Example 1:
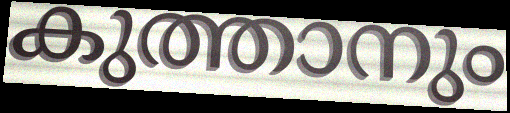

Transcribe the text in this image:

കുത്താനും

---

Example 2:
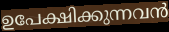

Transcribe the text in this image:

ഉപേക്ഷിക്കുന്നവൻ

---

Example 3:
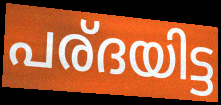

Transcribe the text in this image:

പര്ദയിട്ട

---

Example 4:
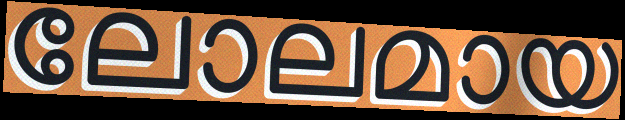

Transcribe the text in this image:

ലോലമായ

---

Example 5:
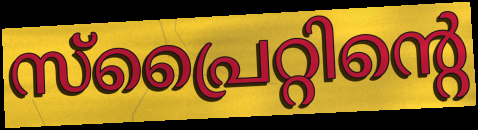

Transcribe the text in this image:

സ്പ്രൈറ്റിന്റെ